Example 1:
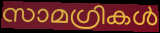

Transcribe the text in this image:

സാമഗ്രികൾ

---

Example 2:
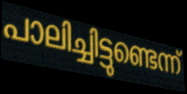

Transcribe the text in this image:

പാലിച്ചിട്ടുണ്ടെന്ന്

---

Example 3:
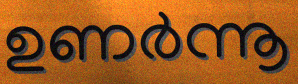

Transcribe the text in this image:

ഉണർന്നൂ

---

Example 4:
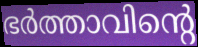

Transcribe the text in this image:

ഭർത്താവിന്റെ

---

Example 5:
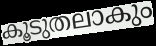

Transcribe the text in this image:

കൂടുതലാകും